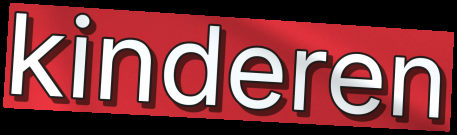
kinderen